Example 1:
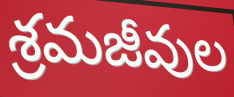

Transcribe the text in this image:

శ్రమజీవుల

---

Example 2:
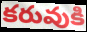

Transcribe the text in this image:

కరువుకి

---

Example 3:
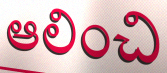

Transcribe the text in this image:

ఆలించి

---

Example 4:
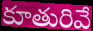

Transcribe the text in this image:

కూతురివే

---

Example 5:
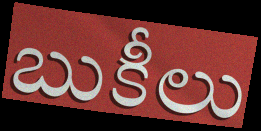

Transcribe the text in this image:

బుకీలు